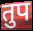
तुप